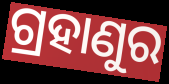
ଗ୍ରହାଣୁର